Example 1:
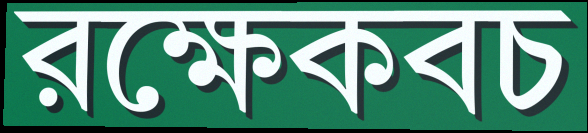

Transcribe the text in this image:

রক্ষেকবচ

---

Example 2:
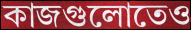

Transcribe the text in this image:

কাজগুলোতেও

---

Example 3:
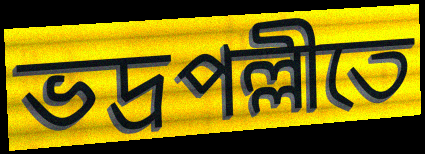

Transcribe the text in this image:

ভদ্রপল্লীতে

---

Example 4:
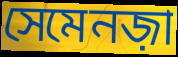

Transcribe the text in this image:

সেমেনজ়া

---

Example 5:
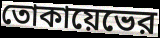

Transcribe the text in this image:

তোকায়েভের